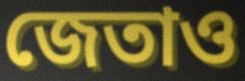
জেতাও